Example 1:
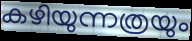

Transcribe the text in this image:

കഴിയുന്നത്രയും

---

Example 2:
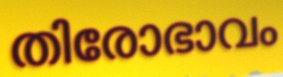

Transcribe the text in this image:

തിരോഭാവം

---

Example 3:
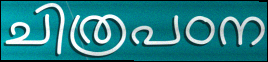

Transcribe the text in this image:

ചിത്രപഠന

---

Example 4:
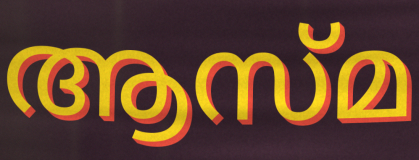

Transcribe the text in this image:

ആസ്മ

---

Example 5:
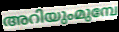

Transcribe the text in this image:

അറിയുംമുമ്പേ